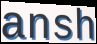
ansh